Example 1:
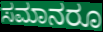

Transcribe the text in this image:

ಸಮಾನರೂ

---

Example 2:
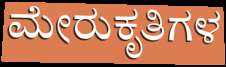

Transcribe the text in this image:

ಮೇರುಕೃತಿಗಳ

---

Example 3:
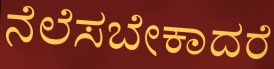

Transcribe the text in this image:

ನೆಲೆಸಬೇಕಾದರೆ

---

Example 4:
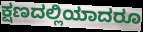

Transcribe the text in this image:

ಕ್ಷಣದಲ್ಲಿಯಾದರೂ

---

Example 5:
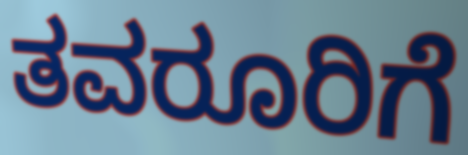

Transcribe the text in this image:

ತವರೂರಿಗೆ